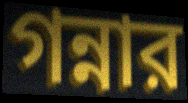
গন্নার